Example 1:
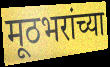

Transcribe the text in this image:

मूठभरांच्या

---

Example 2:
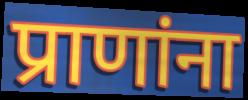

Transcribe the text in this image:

प्राणांना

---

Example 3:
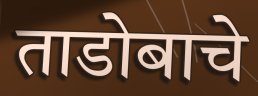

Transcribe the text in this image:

ताडोबाचे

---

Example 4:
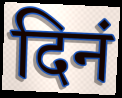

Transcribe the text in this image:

दिनं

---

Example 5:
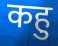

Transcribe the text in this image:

कहु